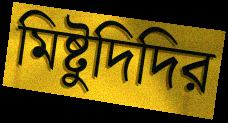
মিষ্টুদিদির